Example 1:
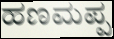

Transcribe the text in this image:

ಹಣಮಪ್ಪ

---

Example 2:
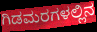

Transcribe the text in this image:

ಗಿಡಮರಗಳಲ್ಲಿನ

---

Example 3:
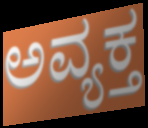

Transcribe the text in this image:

ಅವ್ಯಕ್ತ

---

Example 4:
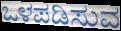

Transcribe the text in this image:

ಒಳಪಡಿಸುವ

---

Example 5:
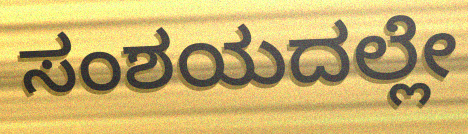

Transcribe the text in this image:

ಸಂಶಯದಲ್ಲೇ